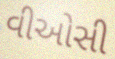
વીઓસી